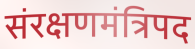
संरक्षणमंत्रिपद